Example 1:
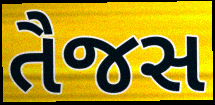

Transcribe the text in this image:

તૈજસ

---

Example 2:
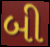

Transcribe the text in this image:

બી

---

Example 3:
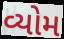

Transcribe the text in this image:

વ્યોમ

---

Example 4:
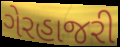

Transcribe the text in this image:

ગેરહાજરી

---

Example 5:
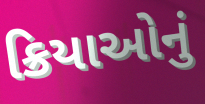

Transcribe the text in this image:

ક્રિયાઓનું